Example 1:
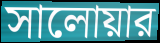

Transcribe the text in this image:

সালোয়ার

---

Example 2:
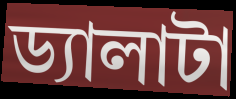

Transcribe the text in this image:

ড্যালাটা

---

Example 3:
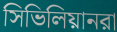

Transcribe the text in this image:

সিভিলিয়ানরা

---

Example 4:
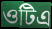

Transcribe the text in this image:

ওটিএ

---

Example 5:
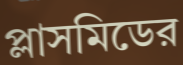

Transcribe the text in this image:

প্লাসমিডের